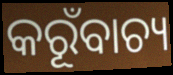
କରୂଁବାଚ୍ୟ